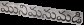
మునిమనుమడి